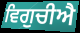
ਵਿਗੁਚੀਐ